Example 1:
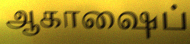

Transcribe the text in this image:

ஆகாஷைப்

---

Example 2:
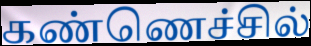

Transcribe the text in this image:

கண்ணெச்சில்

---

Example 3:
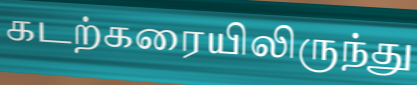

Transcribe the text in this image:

கடற்கரையிலிருந்து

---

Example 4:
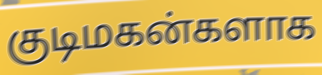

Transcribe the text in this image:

குடிமகன்களாக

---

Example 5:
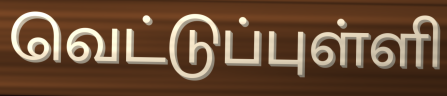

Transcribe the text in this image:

வெட்டுப்புள்ளி